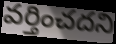
వర్తించదని